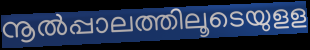
നൂൽപ്പാലത്തിലൂടെയുളള